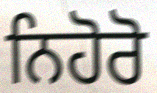
ਨਿਹੋਰੋ